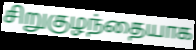
சிறுகுழந்தையாக